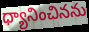
ధ్యానించినను